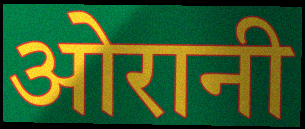
ओरानी